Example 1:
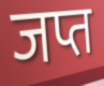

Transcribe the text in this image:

जप्त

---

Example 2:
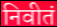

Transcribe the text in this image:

निवीतं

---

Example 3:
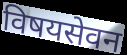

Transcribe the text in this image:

विषयसेवन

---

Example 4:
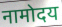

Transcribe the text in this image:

नामोदय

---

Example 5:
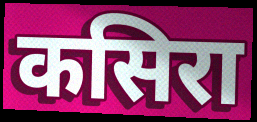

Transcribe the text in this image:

कसिरा